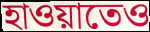
হাওয়াতেও